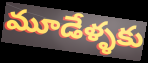
మూడేళ్ళకు